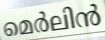
മെർലിൻ